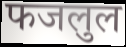
फजलुल